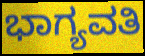
ಭಾಗ್ಯವತಿ